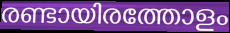
രണ്ടായിരത്തോളം